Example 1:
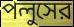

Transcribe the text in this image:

পলুসের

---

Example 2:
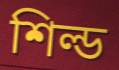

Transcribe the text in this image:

শিল্ড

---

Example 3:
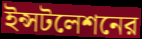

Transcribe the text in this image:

ইন্সটলেশনের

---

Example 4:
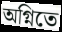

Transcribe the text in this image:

অগ্নিতে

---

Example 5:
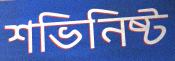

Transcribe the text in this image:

শভিনিষ্ট